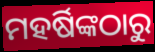
ମହର୍ଷିଙ୍କଠାରୁ